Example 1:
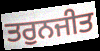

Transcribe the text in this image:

ਤਰੁਨਜੀਤ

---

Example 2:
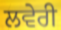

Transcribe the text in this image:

ਲਵੇਰੀ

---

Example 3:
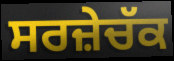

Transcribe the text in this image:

ਸਰਜ਼ੇਚੱਕ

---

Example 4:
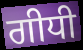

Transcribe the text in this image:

ਗੀਧੀ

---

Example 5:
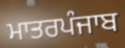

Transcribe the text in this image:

ਮਾਤਰਪੰਜਾਬ